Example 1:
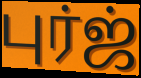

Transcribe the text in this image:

புர்ஜ்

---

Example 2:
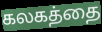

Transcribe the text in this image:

கலகத்தை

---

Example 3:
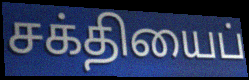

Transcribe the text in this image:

சக்தியைப்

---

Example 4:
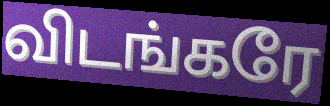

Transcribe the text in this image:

விடங்கரே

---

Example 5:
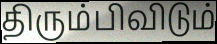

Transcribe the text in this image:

திரும்பிவிடும்